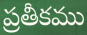
ప్రతీకము